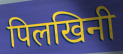
पिलखिनी